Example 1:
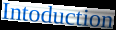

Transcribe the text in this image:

Intoduction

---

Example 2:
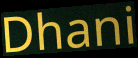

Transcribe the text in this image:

Dhani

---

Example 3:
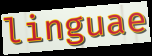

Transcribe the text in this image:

linguae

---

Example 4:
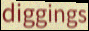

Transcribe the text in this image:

diggings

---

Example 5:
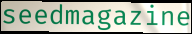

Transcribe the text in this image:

seedmagazine